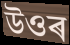
উওৰ